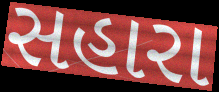
સહારા